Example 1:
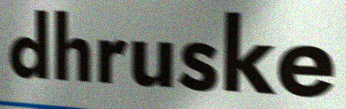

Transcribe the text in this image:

dhruske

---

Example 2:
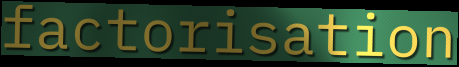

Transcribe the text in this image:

factorisation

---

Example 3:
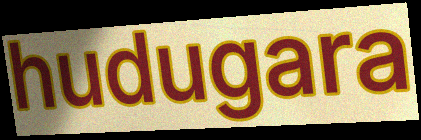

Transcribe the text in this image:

hudugara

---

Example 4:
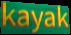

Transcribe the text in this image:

kayak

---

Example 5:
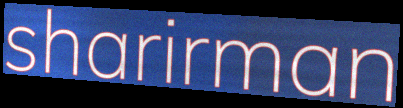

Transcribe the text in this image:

sharirman